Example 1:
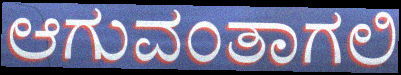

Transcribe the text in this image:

ಆಗುವಂತಾಗಲಿ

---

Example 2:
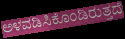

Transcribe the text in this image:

ಅಳವಡಿಸಿಕೊಂಡಿರುತ್ತದೆ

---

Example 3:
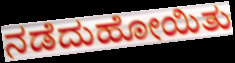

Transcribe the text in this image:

ನಡೆದುಹೋಯಿತು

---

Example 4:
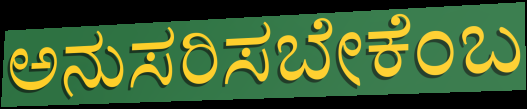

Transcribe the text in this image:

ಅನುಸರಿಸಬೇಕೆಂಬ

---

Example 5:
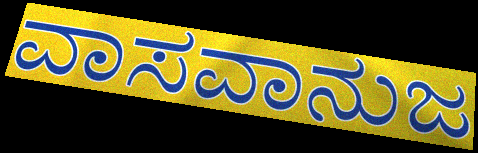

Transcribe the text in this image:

ವಾಸವಾನುಜ